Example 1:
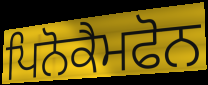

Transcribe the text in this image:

ਪਿਨੋਕੈਮਫੋਨ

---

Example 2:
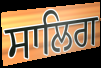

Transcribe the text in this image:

ਸਾਲਿਗ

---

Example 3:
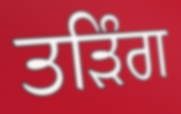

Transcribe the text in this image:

ਤੜਿੰਗ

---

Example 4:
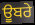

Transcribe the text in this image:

ਊਬਰੇ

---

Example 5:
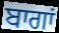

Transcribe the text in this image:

ਬਾਗਾਂ